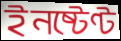
ইনষ্টেণ্ট